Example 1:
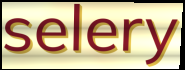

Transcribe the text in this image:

selery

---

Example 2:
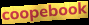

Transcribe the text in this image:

coopebook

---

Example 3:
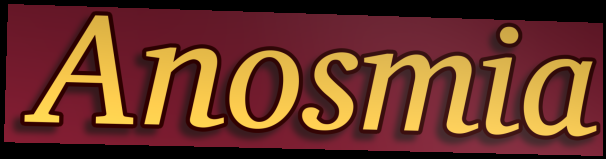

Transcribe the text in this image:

Anosmia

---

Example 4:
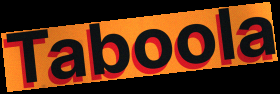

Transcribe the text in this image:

Taboola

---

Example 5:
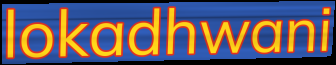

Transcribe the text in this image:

lokadhwani